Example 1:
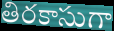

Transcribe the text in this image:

తిరకాసుగా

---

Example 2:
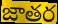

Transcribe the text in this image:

జాతర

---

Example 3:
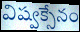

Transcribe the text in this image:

విష్వక్సేనం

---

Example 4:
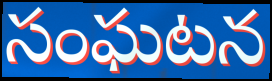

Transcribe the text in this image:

సంఘటన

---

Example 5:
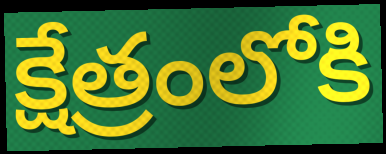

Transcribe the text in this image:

క్షేత్రంలోకి